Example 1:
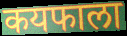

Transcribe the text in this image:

कयफाला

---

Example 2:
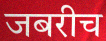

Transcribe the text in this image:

जबरीच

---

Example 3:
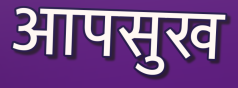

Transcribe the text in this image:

आपसुख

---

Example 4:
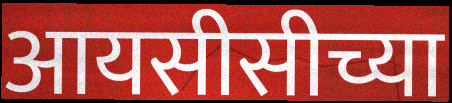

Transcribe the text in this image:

आयसीसीच्या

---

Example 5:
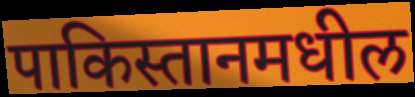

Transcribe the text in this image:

पाकिस्तानमधील